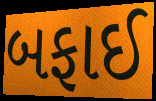
બફાઈ